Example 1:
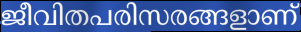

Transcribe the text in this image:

ജീവിതപരിസരങ്ങളാണ്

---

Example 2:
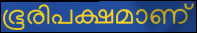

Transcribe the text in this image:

ഭൂരിപക്ഷമാണ്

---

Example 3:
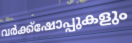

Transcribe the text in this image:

വർക്ക്ഷോപ്പുകളും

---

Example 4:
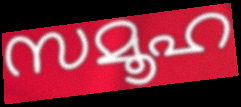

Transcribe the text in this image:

സമൂഹ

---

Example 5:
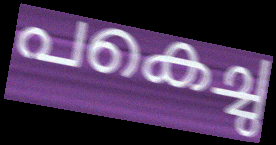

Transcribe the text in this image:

പകെച്ചു